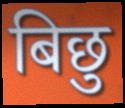
बिछु